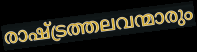
രാഷ്ട്രത്തലവന്മാരും